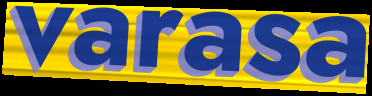
varasa